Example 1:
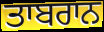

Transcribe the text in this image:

ਤਾਬਰਾਨ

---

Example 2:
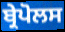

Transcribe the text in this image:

ਬ੍ਰੇਪੋਲਸ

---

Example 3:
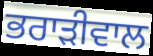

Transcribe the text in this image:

ਭਰਾੜੀਵਾਲ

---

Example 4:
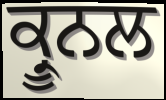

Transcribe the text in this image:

ਕ੍ਰੂਨਲ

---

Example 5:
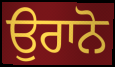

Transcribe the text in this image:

ਉਰਾਨੋ